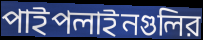
পাইপলাইনগুলির